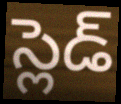
స్లెడ్